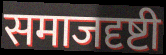
समाजदृष्टी